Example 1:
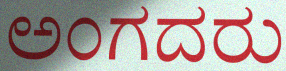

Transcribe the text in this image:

ಅಂಗದರು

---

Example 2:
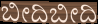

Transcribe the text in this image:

ಬೀದಿಬೀದಿ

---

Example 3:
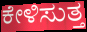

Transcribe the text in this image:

ಕೇಳಿಸುತ್ತ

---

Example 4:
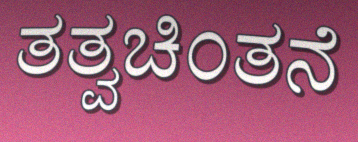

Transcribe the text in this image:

ತತ್ವಚಿಂತನೆ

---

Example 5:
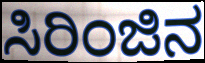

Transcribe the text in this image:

ಸಿರಿಂಜಿನ